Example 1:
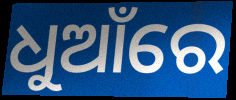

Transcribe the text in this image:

ଧୁଆଁରେ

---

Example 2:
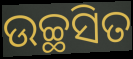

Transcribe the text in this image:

ଉଚ୍ଛସିତ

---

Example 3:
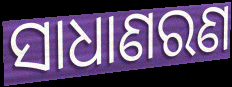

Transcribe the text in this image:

ସାଧାଣରଣ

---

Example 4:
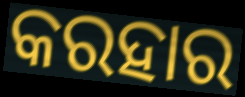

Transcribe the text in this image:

କରହାର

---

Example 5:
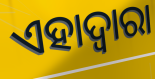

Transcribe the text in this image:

ଏହାଦ୍ୱାରା